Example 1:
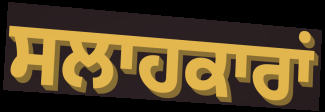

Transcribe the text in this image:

ਸਲਾਹਕਾਰਾਂ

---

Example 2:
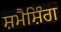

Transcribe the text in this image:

ਸ਼ਮੈਸ਼ਿੰਗ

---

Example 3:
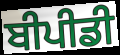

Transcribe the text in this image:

ਬੀਪੀਡੀ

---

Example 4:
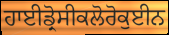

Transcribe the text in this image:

ਹਾਈਡ੍ਰੋਸੀਕਲੋਰੋਕੁਈਨ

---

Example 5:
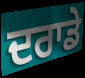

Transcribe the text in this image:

ਦਰਾਡੇ